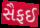
સૈફઈ